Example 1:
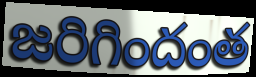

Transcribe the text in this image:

జరిగిందంత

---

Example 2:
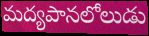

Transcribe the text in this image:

మద్యపానలోలుడు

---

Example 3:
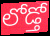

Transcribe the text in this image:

లోడ్తో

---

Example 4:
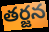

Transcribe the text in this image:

తర్జన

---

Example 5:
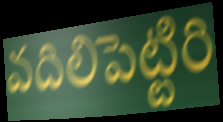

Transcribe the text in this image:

వదిలిపెట్టిరి